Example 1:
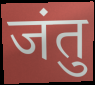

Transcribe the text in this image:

जंतु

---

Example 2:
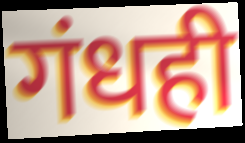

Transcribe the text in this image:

गंधही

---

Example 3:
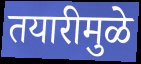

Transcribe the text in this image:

तयारीमुळे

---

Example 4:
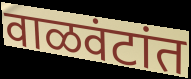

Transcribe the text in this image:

वाळवंटांत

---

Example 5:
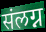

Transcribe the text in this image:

संलग्न